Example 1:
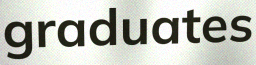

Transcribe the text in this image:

graduates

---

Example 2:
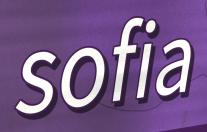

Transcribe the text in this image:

sofia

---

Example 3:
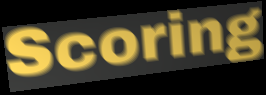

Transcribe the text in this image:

Scoring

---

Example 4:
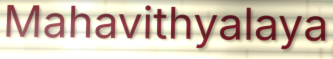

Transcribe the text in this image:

Mahavithyalaya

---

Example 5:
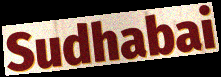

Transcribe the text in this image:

Sudhabai